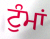
ਟੁੰਮਾਂ